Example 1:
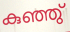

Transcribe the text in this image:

കുഞ്ഞു്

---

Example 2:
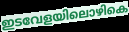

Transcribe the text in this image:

ഇടവേളയിലൊഴികെ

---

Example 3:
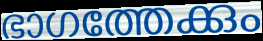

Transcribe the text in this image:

ഭാഗത്തേക്കും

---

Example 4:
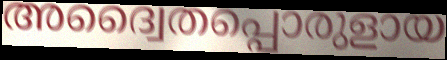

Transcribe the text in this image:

അദ്വൈതപ്പൊരുളായ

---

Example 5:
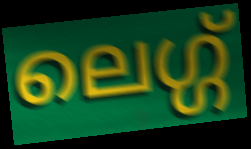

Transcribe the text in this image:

ലെഗ്ഗ്